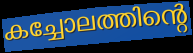
കച്ചോലത്തിന്റെ